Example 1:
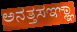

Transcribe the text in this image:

ಅನತ್ತಸಞ್ಞಾ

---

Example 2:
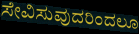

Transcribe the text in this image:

ಸೇವಿಸುವುದರಿಂದಲೂ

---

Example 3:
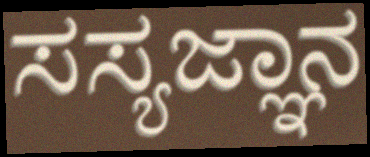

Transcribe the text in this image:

ಸಸ್ಯಜ್ಞಾನ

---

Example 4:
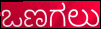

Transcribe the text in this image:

ಒಣಗಲು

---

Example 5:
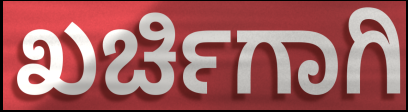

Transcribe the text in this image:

ಖರ್ಚಿಗಾಗಿ